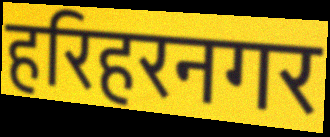
हरिहरनगर